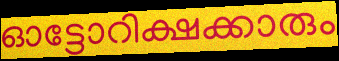
ഓട്ടോറിക്ഷക്കാരും